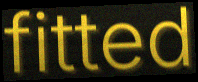
fitted